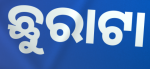
ଛୁରାଟା